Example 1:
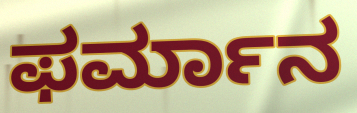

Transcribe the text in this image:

ಫರ್ಮಾನ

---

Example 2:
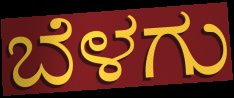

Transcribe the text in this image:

ಬೆಳಗು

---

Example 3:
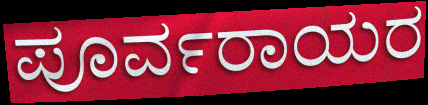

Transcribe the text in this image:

ಪೂರ್ವರಾಯರ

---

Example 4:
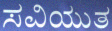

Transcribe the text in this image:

ಸವಿಯುತ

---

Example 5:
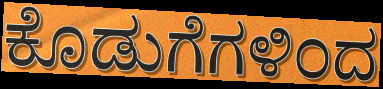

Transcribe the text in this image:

ಕೊಡುಗೆಗಳಿಂದ